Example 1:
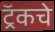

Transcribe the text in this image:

ट्रॅकचे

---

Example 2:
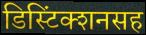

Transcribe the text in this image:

डिस्टिंक्शनसह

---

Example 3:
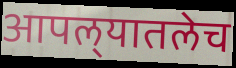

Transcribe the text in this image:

आपल्यातलेच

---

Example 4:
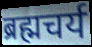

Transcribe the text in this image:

ब्रह्मचर्य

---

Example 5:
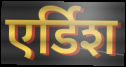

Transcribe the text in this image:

एर्डिश